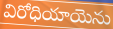
విరోధియాయెను